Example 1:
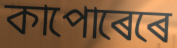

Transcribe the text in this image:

কাপোৰেৰে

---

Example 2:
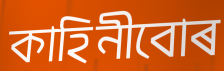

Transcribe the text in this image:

কাহিনীবোৰ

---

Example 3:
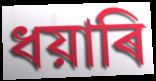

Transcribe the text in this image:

ধয়াৰি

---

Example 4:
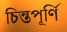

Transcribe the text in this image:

চিন্তপূৰ্ণি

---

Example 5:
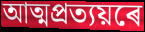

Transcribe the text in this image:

আত্মপ্ৰত্যয়ৰে